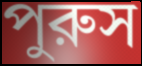
পুরুস